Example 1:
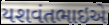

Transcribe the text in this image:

યશવંતભાઇએ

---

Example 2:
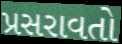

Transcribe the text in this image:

પ્રસરાવતો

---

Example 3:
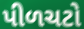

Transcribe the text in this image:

પીળચટો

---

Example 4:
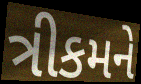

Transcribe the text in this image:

ત્રીકમને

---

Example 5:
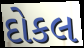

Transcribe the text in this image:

દોકલ